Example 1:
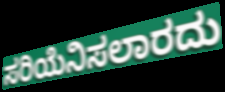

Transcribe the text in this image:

ಸರಿಯೆನಿಸಲಾರದು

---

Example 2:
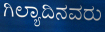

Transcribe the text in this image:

ಗಿಲ್ಯಾದಿನವರು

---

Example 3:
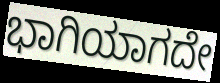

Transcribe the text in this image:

ಭಾಗಿಯಾಗದೇ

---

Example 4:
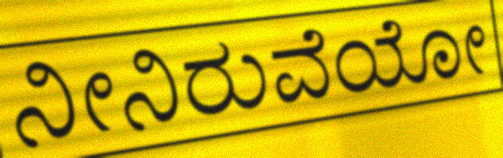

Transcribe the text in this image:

ನೀನಿರುವೆಯೋ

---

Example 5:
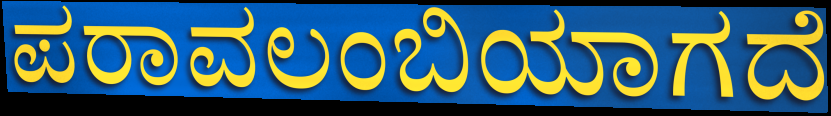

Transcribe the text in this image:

ಪರಾವಲಂಬಿಯಾಗದೆ